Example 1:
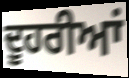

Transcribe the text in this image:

ਦੂਹਰੀਆਂ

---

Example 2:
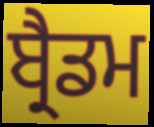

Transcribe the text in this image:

ਬ੍ਰੈਡਮ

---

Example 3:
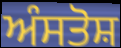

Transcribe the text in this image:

ਅੰਸਤੋਸ਼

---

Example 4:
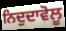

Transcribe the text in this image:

ਨਿਦੁਦਾਵੋਲੂ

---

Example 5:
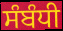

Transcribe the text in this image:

ਸੰਬੰਧੀ